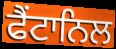
ਫੈਂਟਾਨਿਲ